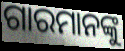
ଗାରମାନଙ୍କୁ